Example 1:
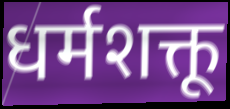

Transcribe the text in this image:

धर्मशक्तू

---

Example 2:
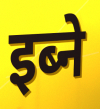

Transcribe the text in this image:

इब्ने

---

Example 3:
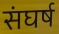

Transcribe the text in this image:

संघर्ष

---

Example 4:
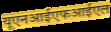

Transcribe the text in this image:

यूएनआईएफआईएल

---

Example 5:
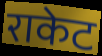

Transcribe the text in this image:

राकेट